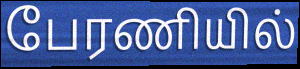
பேரணியில்